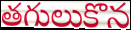
తగులుకొన